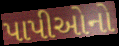
પાપીઓનો